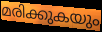
മരിക്കുകയും